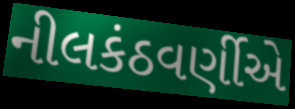
નીલકંઠવર્ણીએ